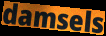
damsels